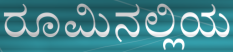
ರೂಮಿನಲ್ಲಿಯ